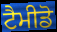
ਟੈਮੀਡੋ